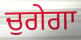
ਚੁਗੇਗਾ